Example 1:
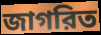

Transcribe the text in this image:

জাগরিত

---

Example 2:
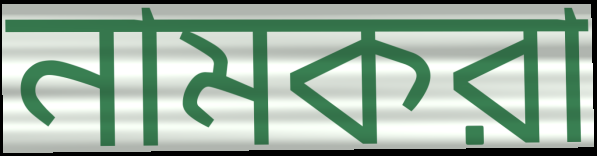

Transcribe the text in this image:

নামকরা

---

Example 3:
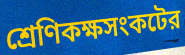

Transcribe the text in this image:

শ্রেণিকক্ষসংকটের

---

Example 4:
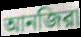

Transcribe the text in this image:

আনজিরা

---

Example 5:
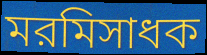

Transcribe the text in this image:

মরমিসাধক